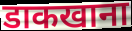
डाकखाना